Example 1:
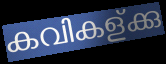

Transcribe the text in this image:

കവികള്ക്കു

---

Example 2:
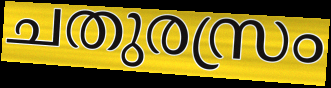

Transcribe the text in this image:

ചതുരസ്രം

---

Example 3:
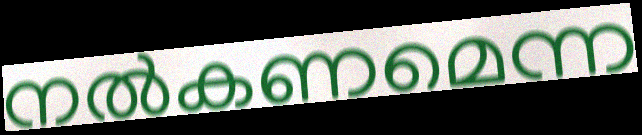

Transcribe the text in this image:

നൽകണമെന്ന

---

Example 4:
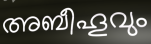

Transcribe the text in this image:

അബീഹൂവും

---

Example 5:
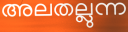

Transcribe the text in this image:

അലതല്ലുന്ന